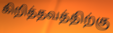
கிறித்தவத்திற்கு